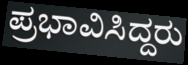
ಪ್ರಭಾವಿಸಿದ್ದರು